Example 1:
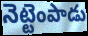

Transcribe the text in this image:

నెట్టెంపాడు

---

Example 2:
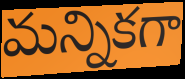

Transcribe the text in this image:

మన్నికగా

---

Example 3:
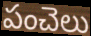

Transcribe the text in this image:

పంచెలు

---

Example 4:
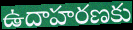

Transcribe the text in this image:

ఉదాహరణకు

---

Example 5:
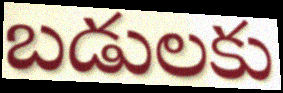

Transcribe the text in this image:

బడులకు